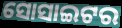
ସୋସାଇଟର